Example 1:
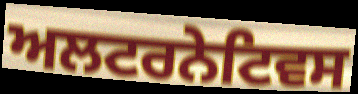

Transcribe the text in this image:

ਅਲਟਰਨੇਟਿਵਸ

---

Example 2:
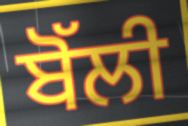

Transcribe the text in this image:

ਬੋੱਲੀ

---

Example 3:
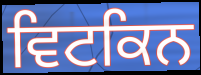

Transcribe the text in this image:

ਵਿਟਕਿਨ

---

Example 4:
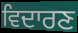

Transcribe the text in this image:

ਵਿਦਾਰਣ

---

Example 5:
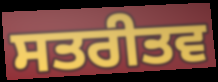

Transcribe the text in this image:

ਸਤਰੀਤਵ